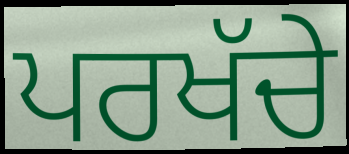
ਪਰਖੱਚੇ